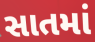
સાતમાં